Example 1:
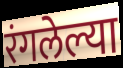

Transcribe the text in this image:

रंगलेल्या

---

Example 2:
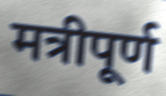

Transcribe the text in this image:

मत्रीपूर्ण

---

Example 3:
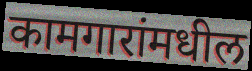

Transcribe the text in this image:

कामगारांमधील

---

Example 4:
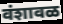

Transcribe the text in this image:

वंशावळ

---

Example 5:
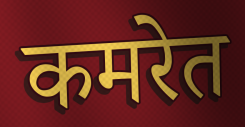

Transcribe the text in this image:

कमरेत